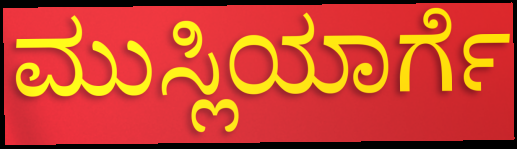
ಮುಸ್ಲಿಯಾರ್ಗೆ